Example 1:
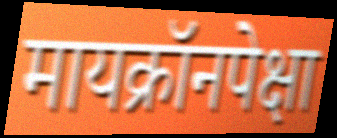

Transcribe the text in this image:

मायक्रॉनपेक्षा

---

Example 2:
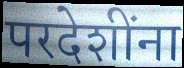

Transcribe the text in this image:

परदेशींना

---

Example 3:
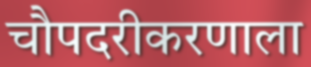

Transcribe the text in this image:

चौपदरीकरणाला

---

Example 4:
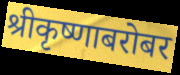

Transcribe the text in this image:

श्रीकृष्णाबरोबर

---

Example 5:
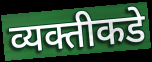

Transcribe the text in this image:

व्यक्तीकडे